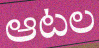
ఆటల